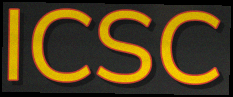
ICSC